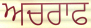
ਅਚਰਾਫ